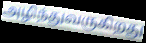
அழிந்துவருகிறது